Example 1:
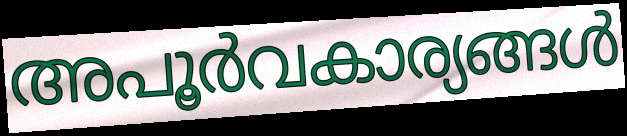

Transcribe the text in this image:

അപൂർവകാര്യങ്ങൾ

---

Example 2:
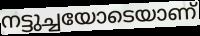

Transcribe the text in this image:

നട്ടുച്ചയോടെയാണ്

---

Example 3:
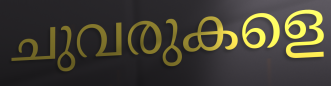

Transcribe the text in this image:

ചുവരുകളെ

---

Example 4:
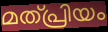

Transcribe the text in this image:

മത്പ്രിയം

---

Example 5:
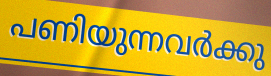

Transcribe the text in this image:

പണിയുന്നവർക്കു